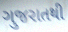
ગુજરાતથી